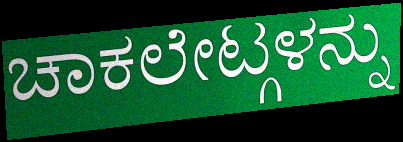
ಚಾಕಲೇಟ್ಗಳನ್ನು